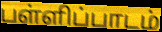
பள்ளிப்பாடம்